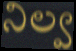
నిల్వ